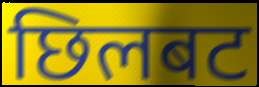
छिलबट